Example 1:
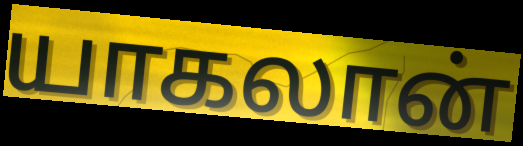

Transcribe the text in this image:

யாகலான்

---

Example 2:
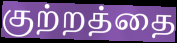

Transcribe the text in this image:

குற்றத்தை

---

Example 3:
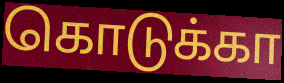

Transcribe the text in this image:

கொடுக்கா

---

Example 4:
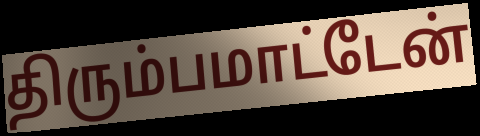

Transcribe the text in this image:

திரும்பமாட்டேன்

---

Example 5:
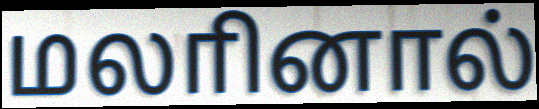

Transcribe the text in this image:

மலரினால்